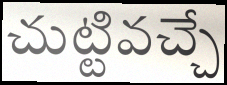
చుట్టివచ్చే